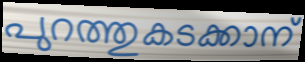
പുറത്തുകടക്കാന്